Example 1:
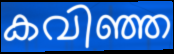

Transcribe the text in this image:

കവിഞ്ഞ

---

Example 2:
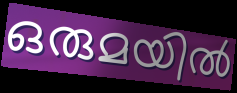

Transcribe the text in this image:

ഒരുമയിൽ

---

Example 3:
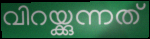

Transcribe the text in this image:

വിറയ്ക്കുന്നത്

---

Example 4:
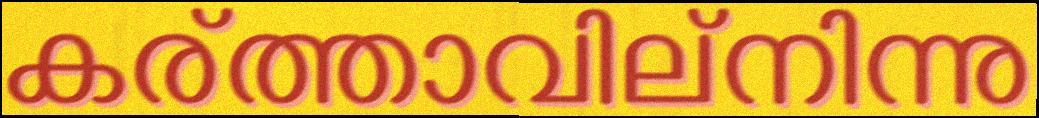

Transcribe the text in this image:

കര്ത്താവില്നിന്നു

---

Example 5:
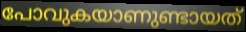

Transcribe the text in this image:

പോവുകയാണുണ്ടായത്